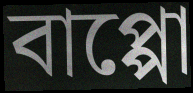
বাপ্পো